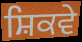
ਸ਼ਿਕਵੇ